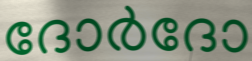
ദോർദോ